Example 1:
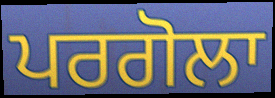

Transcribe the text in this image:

ਪਰਗੋਲਾ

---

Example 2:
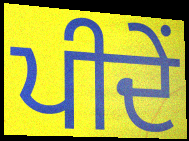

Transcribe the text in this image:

ਪੀਦੇਂ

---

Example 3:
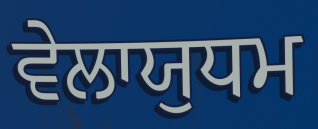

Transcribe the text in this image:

ਵੇਲਾਯੁਧਮ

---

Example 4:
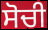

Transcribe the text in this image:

ਸੋਚੀ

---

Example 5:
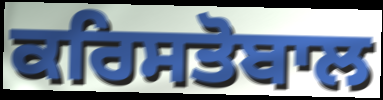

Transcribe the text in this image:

ਕਰਿਸਤੋਬਾਲ